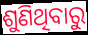
ଶୁଣିଥିବାରୁ